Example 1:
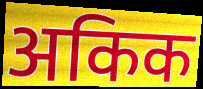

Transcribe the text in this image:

अकिक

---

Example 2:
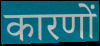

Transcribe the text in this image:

कारणों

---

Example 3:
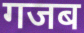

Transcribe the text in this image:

गजब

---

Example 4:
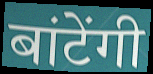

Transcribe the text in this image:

बांटेंगी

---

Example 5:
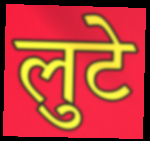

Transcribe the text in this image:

लुटे